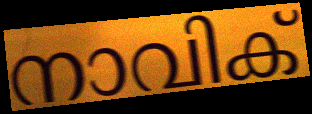
നാവിക്